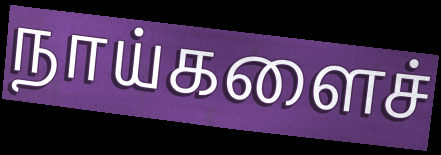
நாய்களைச்